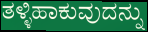
ತಳ್ಳಿಹಾಕುವುದನ್ನು